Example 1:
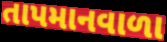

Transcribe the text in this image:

તાપમાનવાળા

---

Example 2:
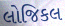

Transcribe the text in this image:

લોજિકલ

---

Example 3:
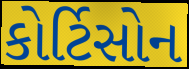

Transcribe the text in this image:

કોર્ટિસોન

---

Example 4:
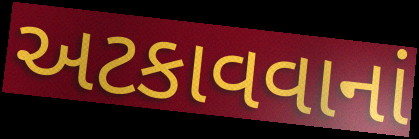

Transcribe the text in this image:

અટકાવવાનાં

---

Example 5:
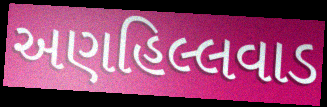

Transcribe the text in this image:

અણહિલ્લવાડ